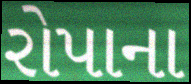
રોપાના